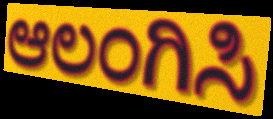
ಆಲಂಗಿಸಿ